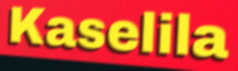
Kaselila